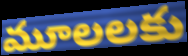
మూలలకు